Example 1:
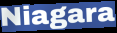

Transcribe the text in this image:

Niagara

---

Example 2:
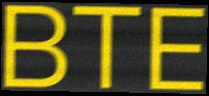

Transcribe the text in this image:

BTE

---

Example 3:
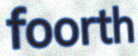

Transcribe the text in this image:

foorth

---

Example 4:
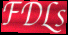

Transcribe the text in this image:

FDLs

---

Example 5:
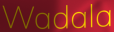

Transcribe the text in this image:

Wadala